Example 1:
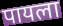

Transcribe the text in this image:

पायला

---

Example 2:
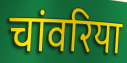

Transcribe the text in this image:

चांवरिया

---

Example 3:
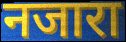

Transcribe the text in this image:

नजारा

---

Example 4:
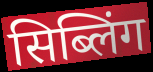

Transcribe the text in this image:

सिब्लिंग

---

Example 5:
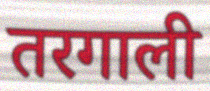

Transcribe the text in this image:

तरगाली